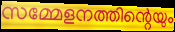
സമ്മേളനത്തിന്റെയും